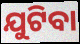
ଯୁଟିବା